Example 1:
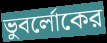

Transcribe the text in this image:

ভুবর্লোকের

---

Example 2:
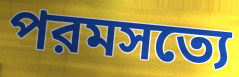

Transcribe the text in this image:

পরমসত্যে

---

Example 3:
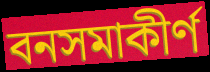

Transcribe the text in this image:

বনসমাকীর্ণ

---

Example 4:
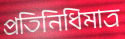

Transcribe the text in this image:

প্রতিনিধিমাত্র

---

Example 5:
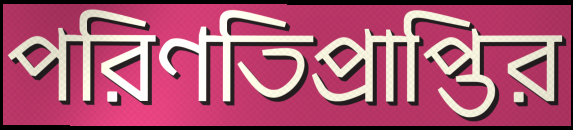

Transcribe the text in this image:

পরিণতিপ্রাপ্তির